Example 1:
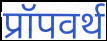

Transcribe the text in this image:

प्रॉपवर्थ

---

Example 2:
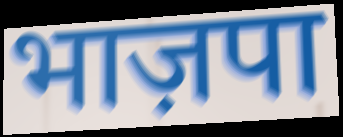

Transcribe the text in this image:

भाज़पा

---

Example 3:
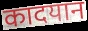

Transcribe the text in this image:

कादयान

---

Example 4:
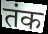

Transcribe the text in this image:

तंक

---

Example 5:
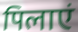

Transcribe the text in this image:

पिलाएं